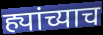
ह्यांच्याच